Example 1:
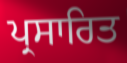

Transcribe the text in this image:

ਪ੍ਰਸਾਰਿਤ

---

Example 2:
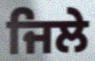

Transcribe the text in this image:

ਜਿਲੇ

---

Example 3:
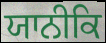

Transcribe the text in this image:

ਯਾਨੀਕਿ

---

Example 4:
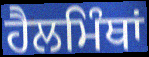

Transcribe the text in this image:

ਹੈਲਮਿੰਥਾਂ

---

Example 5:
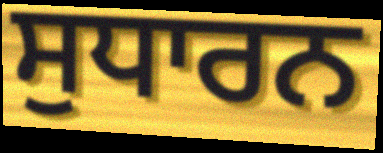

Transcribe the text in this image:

ਸੁਧਾਰਨ